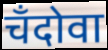
चँदोवा